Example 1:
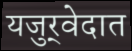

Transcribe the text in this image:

यजुर्वेदात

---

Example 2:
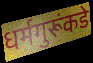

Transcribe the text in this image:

धर्मगुरूंकडे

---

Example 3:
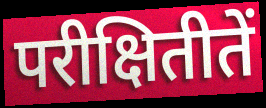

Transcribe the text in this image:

परीक्षितीतें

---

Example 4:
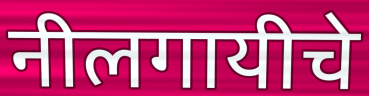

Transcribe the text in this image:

नीलगायीचे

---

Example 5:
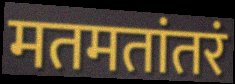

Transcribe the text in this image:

मतमतांतरं